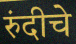
रुंदीचे